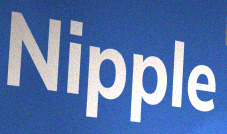
Nipple